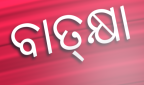
ବାତ୍କ୍ଷା